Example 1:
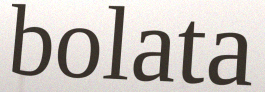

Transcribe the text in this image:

bolata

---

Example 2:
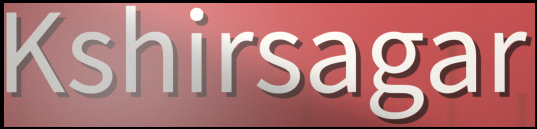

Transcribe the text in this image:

Kshirsagar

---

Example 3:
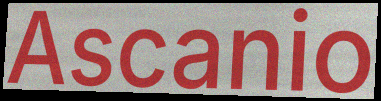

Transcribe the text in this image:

Ascanio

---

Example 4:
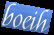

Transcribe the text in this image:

boeih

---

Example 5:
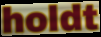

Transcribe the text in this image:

holdt